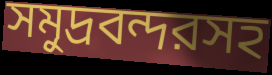
সমুদ্রবন্দরসহ